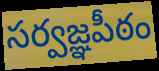
సర్వజ్ఞపీఠం